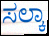
ಸಲ್ಕಾ